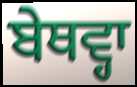
ਬੇਥਵ੍ਹਾ